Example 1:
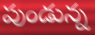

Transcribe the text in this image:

పుండున్న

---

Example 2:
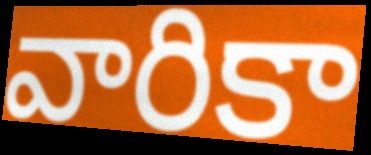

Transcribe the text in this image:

వారికా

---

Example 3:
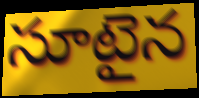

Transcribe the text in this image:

సూటైన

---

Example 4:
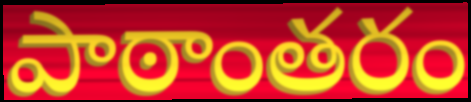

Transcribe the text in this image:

పాఠాంతరం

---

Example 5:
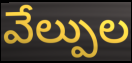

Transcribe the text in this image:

వేల్పుల